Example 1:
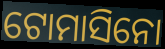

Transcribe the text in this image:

ଟୋମାସିନୋ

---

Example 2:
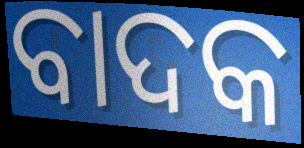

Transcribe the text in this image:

ବାଦକ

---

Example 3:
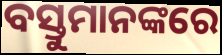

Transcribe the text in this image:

ବସ୍ତୁମାନଙ୍କରେ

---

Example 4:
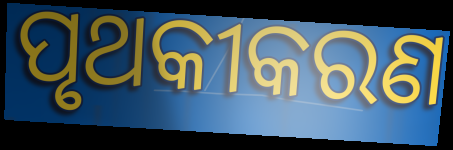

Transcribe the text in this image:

ପୃଥକୀକରଣ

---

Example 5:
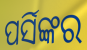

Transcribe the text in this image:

ପର୍ସିଙ୍କର